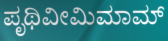
ಪೃಥಿವೀಮಿಮಾಮ್